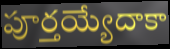
పూర్తయ్యేదాకా